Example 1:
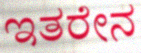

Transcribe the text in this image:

ಇತರೇನ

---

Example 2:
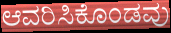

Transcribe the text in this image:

ಆವರಿಸಿಕೊಂಡವು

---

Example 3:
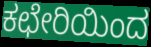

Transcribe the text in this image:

ಕಛೇರಿಯಿಂದ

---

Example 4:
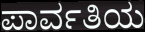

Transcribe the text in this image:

ಪಾರ್ವತಿಯ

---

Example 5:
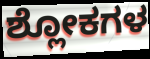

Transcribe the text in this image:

ಶ್ಲೋಕಗಳ